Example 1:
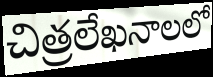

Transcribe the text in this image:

చిత్రలేఖనాలలో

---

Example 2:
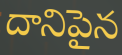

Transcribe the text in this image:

దానిపైన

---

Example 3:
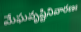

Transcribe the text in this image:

మేఘవృష్టినివారణః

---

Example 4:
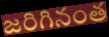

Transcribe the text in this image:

జరిగినంత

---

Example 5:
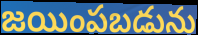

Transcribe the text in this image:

జయింపబడును